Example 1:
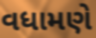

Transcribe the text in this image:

વધામણે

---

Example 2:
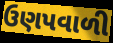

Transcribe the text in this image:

ઉણપવાળી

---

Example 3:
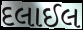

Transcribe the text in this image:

દલાઈલ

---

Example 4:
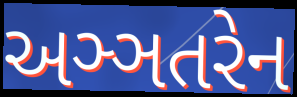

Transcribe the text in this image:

અઞ્ઞતરેન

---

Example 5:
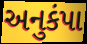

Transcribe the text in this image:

અનુકંપા